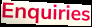
Enquiries